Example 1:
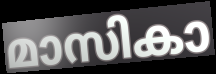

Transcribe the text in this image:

മാസികാ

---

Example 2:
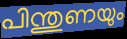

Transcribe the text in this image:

പിന്തുണയും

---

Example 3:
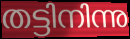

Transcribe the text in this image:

തട്ടിനിന്നു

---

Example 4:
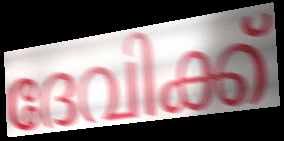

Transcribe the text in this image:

ദേവിക്ക്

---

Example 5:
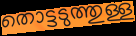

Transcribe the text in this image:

തൊട്ടടുത്തുള്ള